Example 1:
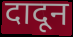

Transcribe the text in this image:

दादून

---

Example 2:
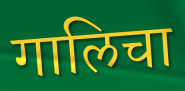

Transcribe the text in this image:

गालिचा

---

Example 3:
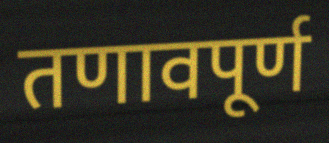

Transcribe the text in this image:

तणावपूर्ण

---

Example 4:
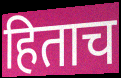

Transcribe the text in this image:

हिताच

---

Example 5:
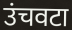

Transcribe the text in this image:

उंचवटा